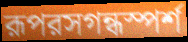
রূপরসগন্ধস্পর্শ